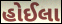
હોઈલા